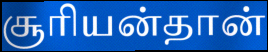
சூரியன்தான்